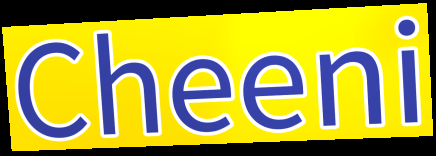
Cheeni